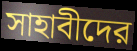
সাহাবীদের